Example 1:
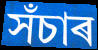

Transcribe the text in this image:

সঁচাৰ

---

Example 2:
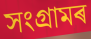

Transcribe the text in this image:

সংগ্ৰামৰ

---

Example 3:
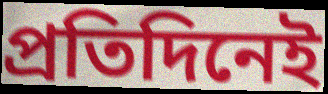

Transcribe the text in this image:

প্ৰতিদিনেই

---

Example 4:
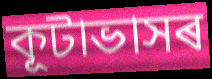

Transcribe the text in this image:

কূটাভাসৰ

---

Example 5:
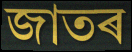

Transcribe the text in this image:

জাতৰ